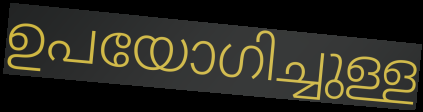
ഉപയോഗിച്ചുള്ള